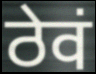
ठेवं